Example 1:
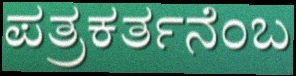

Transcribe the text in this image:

ಪತ್ರಕರ್ತನೆಂಬ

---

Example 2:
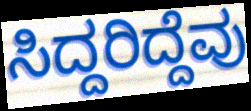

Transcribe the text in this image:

ಸಿದ್ದರಿದ್ದೆವು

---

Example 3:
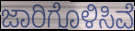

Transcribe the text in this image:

ಜಾರಿಗೊಳಿಸಿವೆ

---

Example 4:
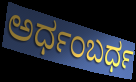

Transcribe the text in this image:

ಅರ್ಧಂಬರ್ಧ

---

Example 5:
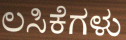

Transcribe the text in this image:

ಲಸಿಕೆಗಳು